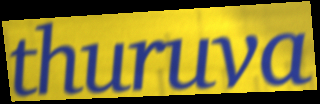
thuruva